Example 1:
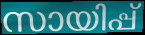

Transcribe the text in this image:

സായിപ്പ്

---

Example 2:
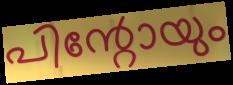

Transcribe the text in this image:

പിന്റോയും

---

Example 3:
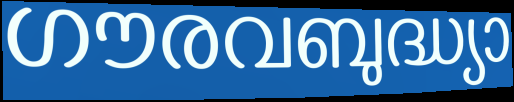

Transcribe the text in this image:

ഗൗരവബുദ്ധ്യാ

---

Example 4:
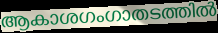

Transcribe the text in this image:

ആകാശഗംഗാതടത്തിൽ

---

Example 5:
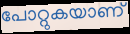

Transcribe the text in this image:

പോറ്റുകയാണ്